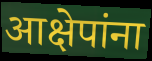
आक्षेपांना